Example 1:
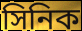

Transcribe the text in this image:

সিনিক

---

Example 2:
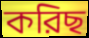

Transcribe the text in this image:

করিছ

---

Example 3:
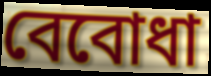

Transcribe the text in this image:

বেবোধা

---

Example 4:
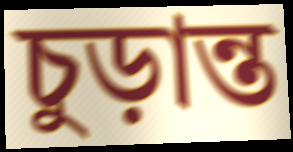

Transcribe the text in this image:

চুড়ান্ত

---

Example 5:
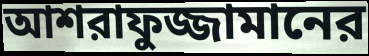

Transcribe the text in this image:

আশরাফুজ্জামানের